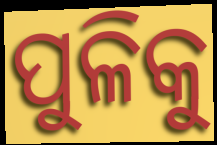
ପୁଳିକୁ